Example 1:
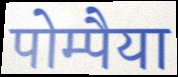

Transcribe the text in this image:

पोम्पैया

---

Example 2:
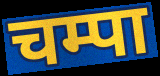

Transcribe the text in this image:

चम्पा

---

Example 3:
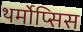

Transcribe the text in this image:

थर्मोप्सिस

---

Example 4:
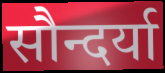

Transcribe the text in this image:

सौन्दर्या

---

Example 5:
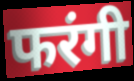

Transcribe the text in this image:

फरंगी